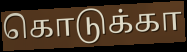
கொடுக்கா